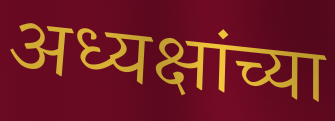
अध्यक्षांच्या